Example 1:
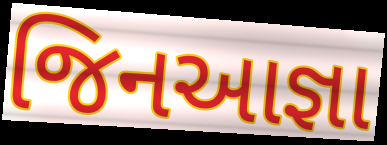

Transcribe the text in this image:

જિનઆજ્ઞા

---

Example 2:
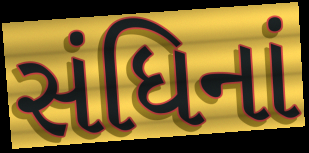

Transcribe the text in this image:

સંધિનાં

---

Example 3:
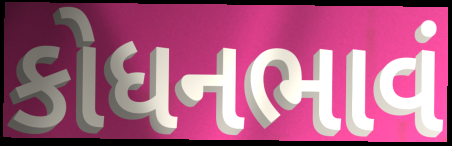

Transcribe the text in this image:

કોધનભાવં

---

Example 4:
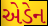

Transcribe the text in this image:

એડેન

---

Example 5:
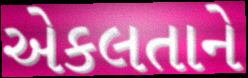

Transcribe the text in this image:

એકલતાને